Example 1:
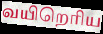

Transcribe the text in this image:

வயிறெரிய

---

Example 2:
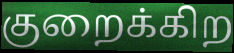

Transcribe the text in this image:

குறைக்கிற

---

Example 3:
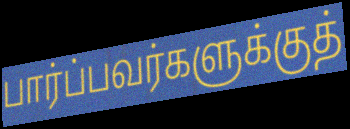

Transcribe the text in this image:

பார்ப்பவர்களுக்குத்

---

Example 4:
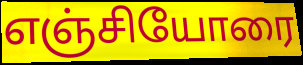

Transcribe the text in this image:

எஞ்சியோரை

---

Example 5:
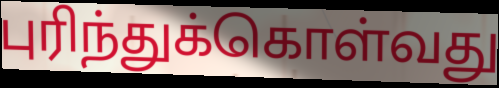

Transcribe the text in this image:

புரிந்துக்கொள்வது